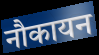
नौकायन